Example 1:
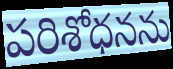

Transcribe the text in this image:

పరిశోధనను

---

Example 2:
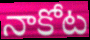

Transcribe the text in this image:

నాకోట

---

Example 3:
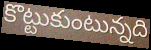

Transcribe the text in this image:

కొట్టుకుంటున్నది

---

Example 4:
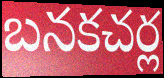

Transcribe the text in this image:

బనకచర్ల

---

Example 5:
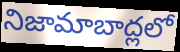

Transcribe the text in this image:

నిజామాబాద్లలో